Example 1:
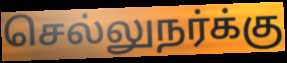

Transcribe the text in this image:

செல்லுநர்க்கு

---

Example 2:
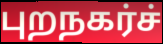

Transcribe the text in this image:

புறநகர்ச்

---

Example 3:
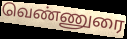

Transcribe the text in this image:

வெண்ணுரை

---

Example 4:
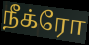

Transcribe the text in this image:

நீக்ரோ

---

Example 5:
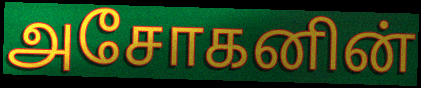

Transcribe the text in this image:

அசோகனின்